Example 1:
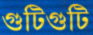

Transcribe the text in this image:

গুটিগুটি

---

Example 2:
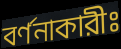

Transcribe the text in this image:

বর্ণনাকারীঃ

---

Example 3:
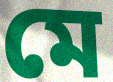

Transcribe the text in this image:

মে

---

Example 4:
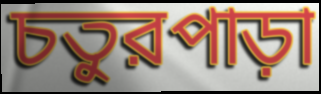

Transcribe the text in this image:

চতুরপাড়া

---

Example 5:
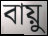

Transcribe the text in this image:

বায়ু